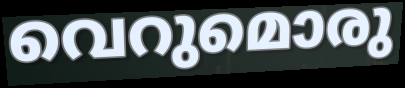
വെറുമൊരു